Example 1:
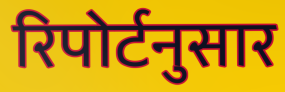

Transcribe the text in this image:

रिपोर्टनुसार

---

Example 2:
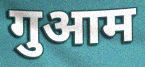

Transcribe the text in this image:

गुआम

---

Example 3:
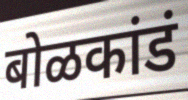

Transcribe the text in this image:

बोळकांडं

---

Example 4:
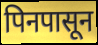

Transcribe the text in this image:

पिनपासून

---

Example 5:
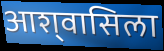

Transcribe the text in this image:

आश्वासिला